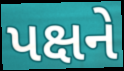
પક્ષને